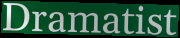
Dramatist